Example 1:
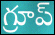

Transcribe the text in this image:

గ్రూప్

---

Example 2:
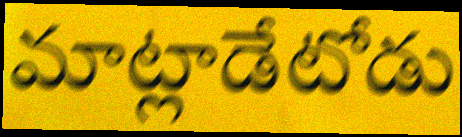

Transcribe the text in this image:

మాట్లాడేటోడు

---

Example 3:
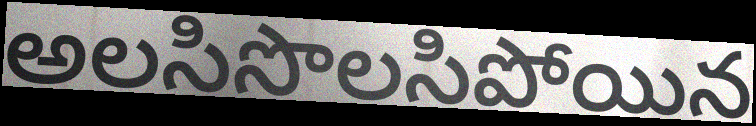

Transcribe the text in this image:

అలసిసొలసిపోయిన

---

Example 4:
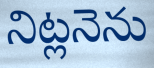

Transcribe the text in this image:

నిట్లనెను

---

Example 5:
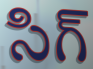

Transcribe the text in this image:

సిగ్